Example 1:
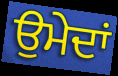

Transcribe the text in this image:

ਉਮੇਦਾਂ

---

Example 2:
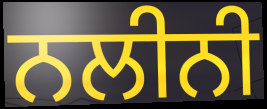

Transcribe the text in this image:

ਨਲੀਨੀ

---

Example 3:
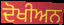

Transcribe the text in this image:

ਦੋਖੀਅਨ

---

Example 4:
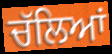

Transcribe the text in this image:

ਚੱਲਿਆਂ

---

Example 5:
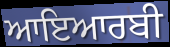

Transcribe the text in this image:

ਆਇਆਰਬੀ